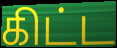
கிட்ட